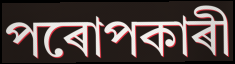
পৰোপকাৰী